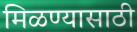
मिळण्यासाठी